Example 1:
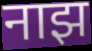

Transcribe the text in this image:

नाझ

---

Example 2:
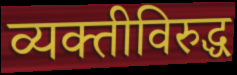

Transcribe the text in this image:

व्यक्तीविरुद्ध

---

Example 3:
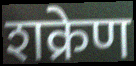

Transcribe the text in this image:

शक्रेण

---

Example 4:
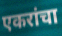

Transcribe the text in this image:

एकरांचा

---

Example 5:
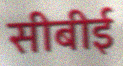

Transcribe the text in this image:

सीबीई